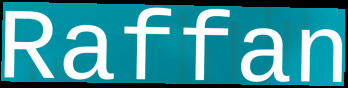
Raffan